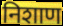
निशाण